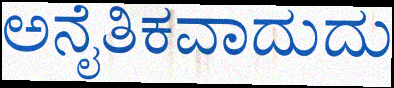
ಅನೈತಿಕವಾದುದು